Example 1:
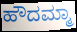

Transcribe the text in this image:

ಹೌದಮ್ಮಾ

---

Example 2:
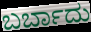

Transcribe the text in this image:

ಬರ್ಬಾದು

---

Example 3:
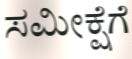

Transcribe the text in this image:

ಸಮೀಕ್ಷೆಗೆ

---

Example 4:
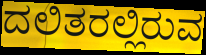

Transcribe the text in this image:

ದಲಿತರಲ್ಲಿರುವ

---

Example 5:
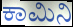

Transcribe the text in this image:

ಕಾಮಿನಿ